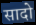
सादो